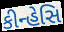
કીન્હેસિ